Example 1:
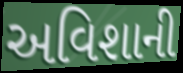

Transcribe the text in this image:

અવિશાની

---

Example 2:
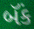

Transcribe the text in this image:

બૅંક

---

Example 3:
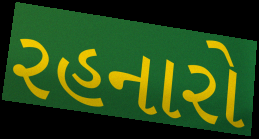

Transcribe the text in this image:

રહનારો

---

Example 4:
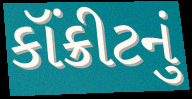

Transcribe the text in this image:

કૉંક્રીટનું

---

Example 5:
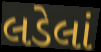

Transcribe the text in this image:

લડેલાં